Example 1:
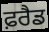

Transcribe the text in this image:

ਫ਼ਰੈਡ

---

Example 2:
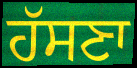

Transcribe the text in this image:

ਹੱਸਣਾ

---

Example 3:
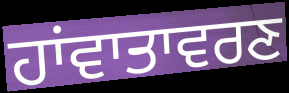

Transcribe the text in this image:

ਹਾਂਵਾਤਾਵਰਣ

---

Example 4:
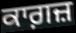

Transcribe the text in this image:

ਕਾਗ਼ਜ਼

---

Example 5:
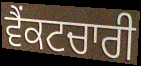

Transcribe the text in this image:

ਵੈਂਕਟਚਾਰੀ